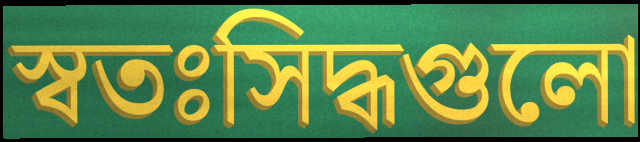
স্বতঃসিদ্ধগুলো